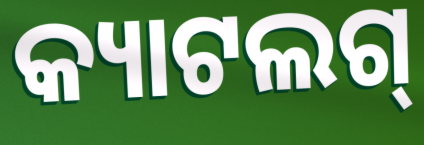
କ୍ୟାଟଲଗ୍